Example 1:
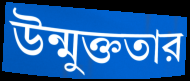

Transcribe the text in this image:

উন্মুক্ততার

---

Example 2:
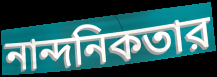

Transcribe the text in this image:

নান্দনিকতার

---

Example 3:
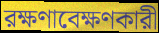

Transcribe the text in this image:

রক্ষণাবেক্ষণকারী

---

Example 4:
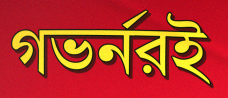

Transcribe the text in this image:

গভর্নরই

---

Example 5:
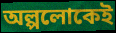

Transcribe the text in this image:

অল্পলোকেই